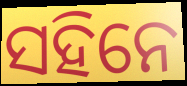
ସହିନେ